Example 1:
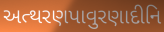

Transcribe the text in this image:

અત્થરણપાવુરણાદીનિ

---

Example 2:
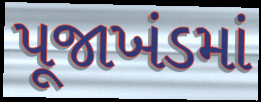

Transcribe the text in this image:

પૂજાખંડમાં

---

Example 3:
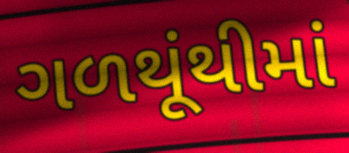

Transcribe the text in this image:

ગળથૂંથીમાં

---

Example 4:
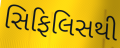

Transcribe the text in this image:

સિફિલિસથી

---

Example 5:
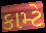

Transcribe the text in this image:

કામ્ટે